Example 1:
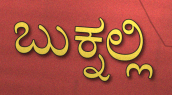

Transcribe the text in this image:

ಬುಕ್ನಲ್ಲಿ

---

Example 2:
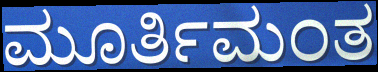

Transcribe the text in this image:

ಮೂರ್ತಿಮಂತ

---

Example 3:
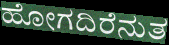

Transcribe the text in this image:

ಹೋಗದಿರೆನುತ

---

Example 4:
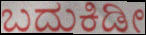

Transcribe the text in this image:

ಬದುಕಿಡೀ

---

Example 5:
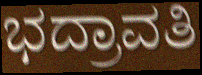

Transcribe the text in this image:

ಭದ್ರಾವತಿ